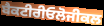
ਬੈਕਟੀਰੀਓਲੋਜੀਕਲ